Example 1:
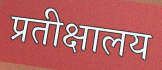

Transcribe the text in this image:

प्रतीक्षालय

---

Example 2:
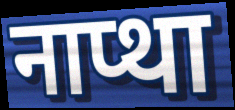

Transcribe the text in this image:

नाप्था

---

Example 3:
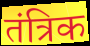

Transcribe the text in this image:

तंत्रिक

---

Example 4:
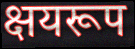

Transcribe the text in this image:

क्षयरूप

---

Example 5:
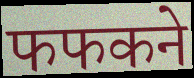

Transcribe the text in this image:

फफकने